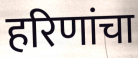
हरिणांचा